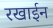
रखाईन